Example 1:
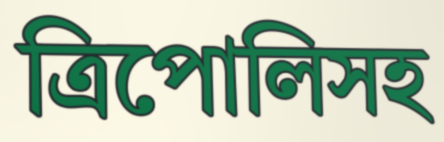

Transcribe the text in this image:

ত্রিপোলিসহ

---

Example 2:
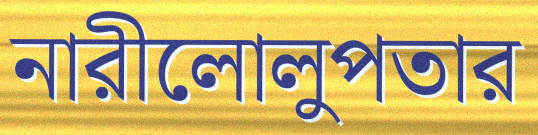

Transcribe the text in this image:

নারীলোলুপতার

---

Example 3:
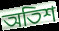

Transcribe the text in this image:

অতিশ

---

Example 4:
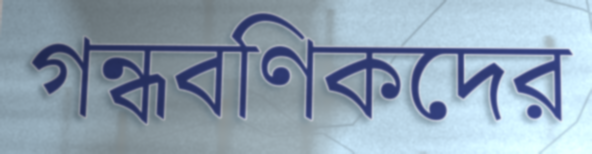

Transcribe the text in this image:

গন্ধবণিকদের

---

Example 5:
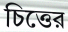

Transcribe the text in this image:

চিত্তের